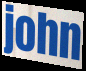
john